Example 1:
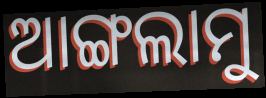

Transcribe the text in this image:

ଆଙ୍ଗଲାମୁ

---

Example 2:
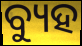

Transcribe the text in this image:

ବ୍ୟୁହ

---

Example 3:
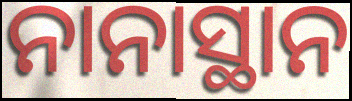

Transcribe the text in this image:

ନାନାସ୍ଥାନ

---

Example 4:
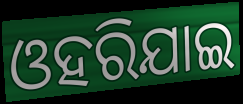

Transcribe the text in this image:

ଓହରିଯାଇ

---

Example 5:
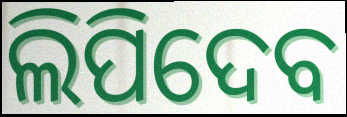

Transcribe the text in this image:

ଲିପିଦେବ